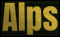
Alps